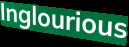
Inglourious